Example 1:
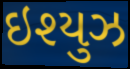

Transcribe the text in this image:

ઇશ્યુઝ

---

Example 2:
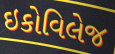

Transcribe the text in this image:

ઇકોવિલેજ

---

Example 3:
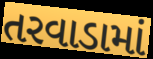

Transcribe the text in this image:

તરવાડામાં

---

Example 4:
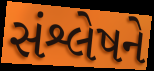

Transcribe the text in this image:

સંશ્લેષને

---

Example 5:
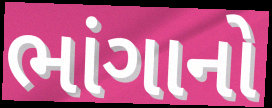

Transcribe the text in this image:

ભાંગાનો